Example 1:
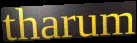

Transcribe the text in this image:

tharum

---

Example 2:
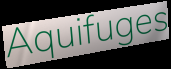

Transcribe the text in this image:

Aquifuges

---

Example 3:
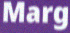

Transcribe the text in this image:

Marg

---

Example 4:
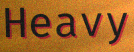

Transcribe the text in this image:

Heavy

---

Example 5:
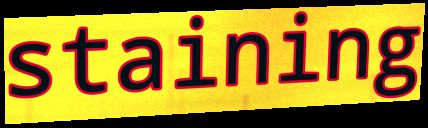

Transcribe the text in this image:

staining